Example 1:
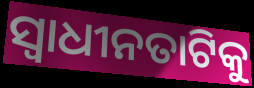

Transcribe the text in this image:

ସ୍ୱାଧୀନତାଟିକୁ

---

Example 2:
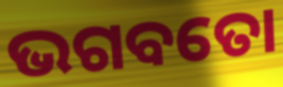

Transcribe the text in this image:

ଭଗବତୋ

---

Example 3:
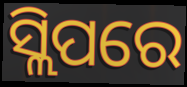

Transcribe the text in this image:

ସ୍ଲିପରେ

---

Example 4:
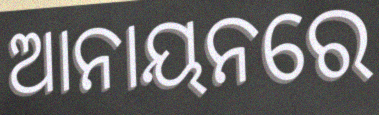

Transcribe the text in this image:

ଆନାୟନରେ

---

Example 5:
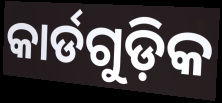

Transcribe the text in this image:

କାର୍ଡଗୁଡ଼ିକ